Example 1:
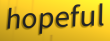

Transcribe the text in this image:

hopeful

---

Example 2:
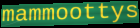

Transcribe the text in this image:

mammoottys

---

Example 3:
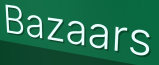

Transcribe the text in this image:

Bazaars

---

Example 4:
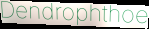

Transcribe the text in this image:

Dendrophthoe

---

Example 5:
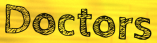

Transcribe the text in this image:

Doctors